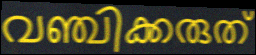
വഞ്ചിക്കരുത്